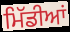
ਮਿੱਡੀਆਂ